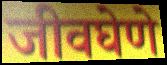
जीवघेणे